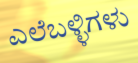
ಎಲೆಬಳ್ಳಿಗಳು